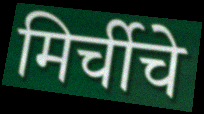
मिर्चीचे